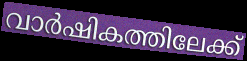
വാർഷികത്തിലേക്ക്